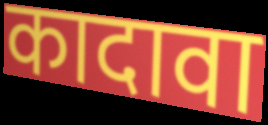
कादावा